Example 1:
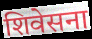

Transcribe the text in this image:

शिवेसना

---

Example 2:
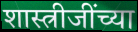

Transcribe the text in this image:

शास्त्रीजींच्या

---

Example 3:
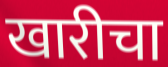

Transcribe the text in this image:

खारीचा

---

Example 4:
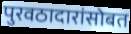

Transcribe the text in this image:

पुरवठादारांसोबत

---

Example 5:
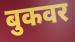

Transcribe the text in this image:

बुकवर